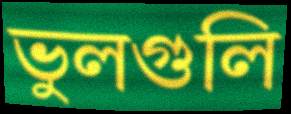
ভুলগুলি